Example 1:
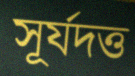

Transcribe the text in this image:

সূর্যদত্ত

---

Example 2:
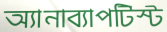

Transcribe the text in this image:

অ্যানাব্যাপটিস্ট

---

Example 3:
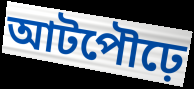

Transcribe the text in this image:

আটপৌঢ়ে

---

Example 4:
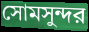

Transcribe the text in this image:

সোমসুন্দর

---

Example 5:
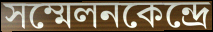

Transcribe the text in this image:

সম্মেলনকেন্দ্রে